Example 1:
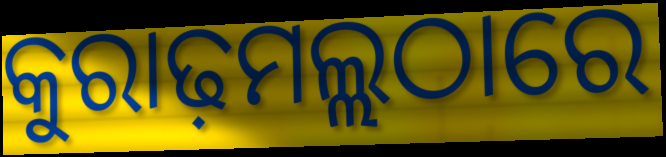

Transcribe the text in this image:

କୁରାଢ଼ମଲ୍ଲଠାରେ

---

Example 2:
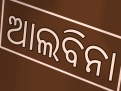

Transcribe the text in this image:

ଆଲବିନା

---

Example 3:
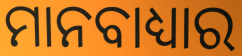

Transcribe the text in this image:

ମାନବାଧ୍ୟାର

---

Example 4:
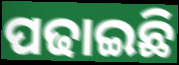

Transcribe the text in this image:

ପଢାଇଛି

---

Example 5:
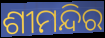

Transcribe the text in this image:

ଶୀମନ୍ଦିର